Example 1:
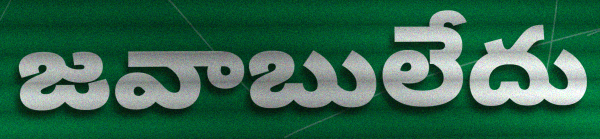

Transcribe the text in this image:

జవాబులేదు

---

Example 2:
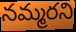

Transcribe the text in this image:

నమ్మరని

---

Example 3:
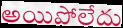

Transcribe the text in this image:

అయిపోలేదు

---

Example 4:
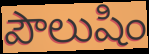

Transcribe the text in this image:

పౌలుషిం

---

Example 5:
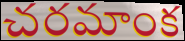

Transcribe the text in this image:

చరమాంక